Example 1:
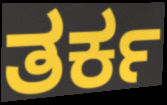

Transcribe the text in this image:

ತರ್ಕ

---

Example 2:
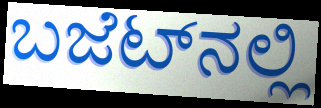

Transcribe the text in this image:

ಬಜೆಟ್‌ನಲ್ಲಿ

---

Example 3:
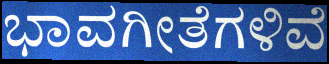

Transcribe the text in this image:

ಭಾವಗೀತೆಗಳಿವೆ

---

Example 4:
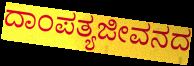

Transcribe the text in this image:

ದಾಂಪತ್ಯಜೀವನದ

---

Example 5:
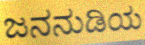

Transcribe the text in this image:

ಜನನುಡಿಯ